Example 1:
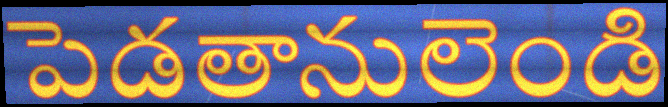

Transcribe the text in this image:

పెడతానులెండి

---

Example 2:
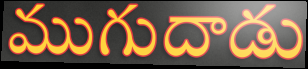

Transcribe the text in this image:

ముగుదాడు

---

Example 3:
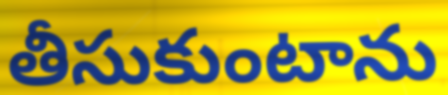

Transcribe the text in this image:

తీసుకుంటాను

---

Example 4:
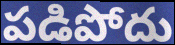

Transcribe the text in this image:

పడిపోదు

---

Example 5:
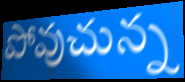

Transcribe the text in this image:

పోవుచున్న